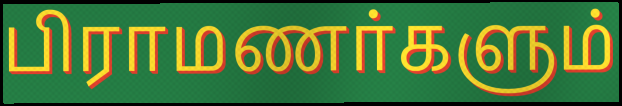
பிராமணர்களும்